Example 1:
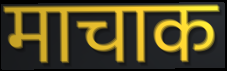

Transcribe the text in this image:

माचाक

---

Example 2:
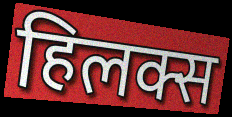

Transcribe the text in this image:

हिलक्स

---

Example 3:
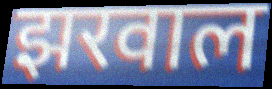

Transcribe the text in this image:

झरवाल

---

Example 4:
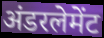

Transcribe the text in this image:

अंडरलेमेंट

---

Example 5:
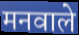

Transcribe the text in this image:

मनवाले